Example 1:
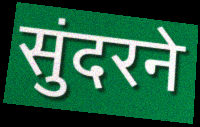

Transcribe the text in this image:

सुंदरने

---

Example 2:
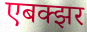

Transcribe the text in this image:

एबक्झर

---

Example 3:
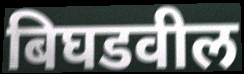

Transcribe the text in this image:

बिघडवील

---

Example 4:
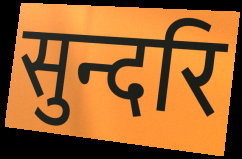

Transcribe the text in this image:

सुन्दरि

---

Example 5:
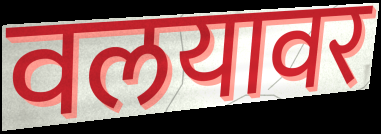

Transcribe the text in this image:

वलयावर